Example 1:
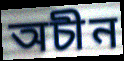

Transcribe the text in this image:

অচীন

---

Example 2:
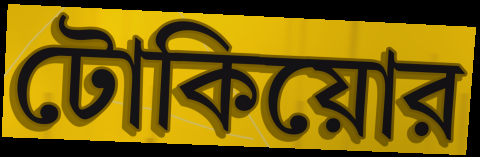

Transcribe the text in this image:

টোকিয়োর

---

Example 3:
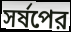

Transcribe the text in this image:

সর্ষপের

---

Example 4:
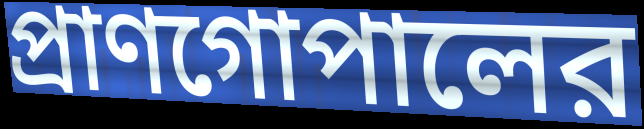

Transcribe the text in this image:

প্রাণগোপালের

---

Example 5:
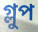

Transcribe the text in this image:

গ্লুপ